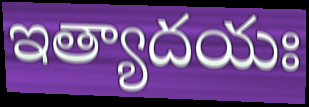
ఇత్యాదయః